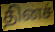
தினச்